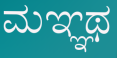
ಮಞ್ಞಥ